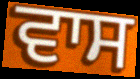
ਵਾਸ